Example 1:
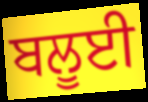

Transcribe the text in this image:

ਬਲੂਈ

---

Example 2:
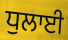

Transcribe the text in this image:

ਧੁਲਾਈ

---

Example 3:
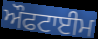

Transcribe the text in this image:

ਔਫਟਾਈਮ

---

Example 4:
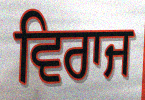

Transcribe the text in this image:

ਵਿਰਾਜ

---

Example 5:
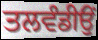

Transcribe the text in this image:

ਤਲਵੰਡੀਉਂ